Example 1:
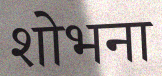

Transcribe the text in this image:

शोभना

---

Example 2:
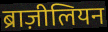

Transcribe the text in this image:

ब्राज़ीलियन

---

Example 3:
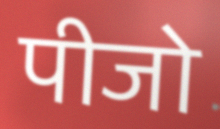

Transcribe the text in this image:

पीजो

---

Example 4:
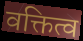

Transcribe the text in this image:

वक्तित्व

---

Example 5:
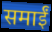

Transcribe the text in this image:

समाईं